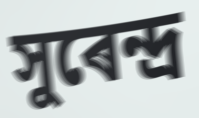
সুৰেন্দ্ৰ